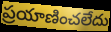
ప్రయాణించలేదు